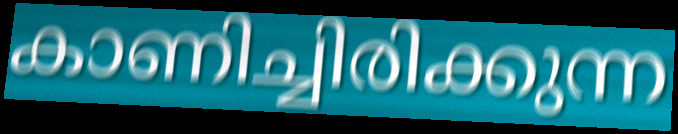
കാണിച്ചിരിക്കുന്ന